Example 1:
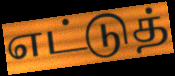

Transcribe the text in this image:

எட்டுத்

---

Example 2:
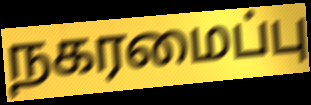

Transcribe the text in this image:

நகரமைப்பு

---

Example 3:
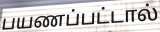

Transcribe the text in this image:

பயணப்பட்டால்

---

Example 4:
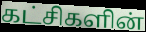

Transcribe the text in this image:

கட்சிகளின்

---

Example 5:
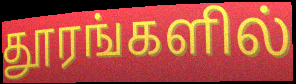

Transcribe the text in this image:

தூரங்களில்